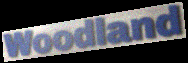
Woodland